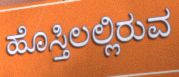
ಹೊಸ್ತಿಲಲ್ಲಿರುವ